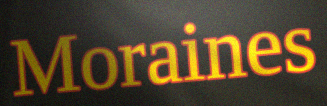
Moraines